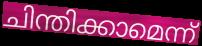
ചിന്തിക്കാമെന്ന്